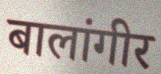
बालांगीर